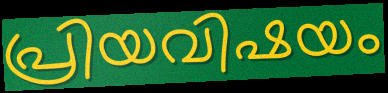
പ്രിയവിഷയം